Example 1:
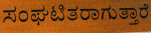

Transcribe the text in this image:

ಸಂಘಟಿತರಾಗುತ್ತಾರೆ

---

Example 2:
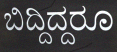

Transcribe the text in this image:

ಬಿದ್ದಿದ್ದರೂ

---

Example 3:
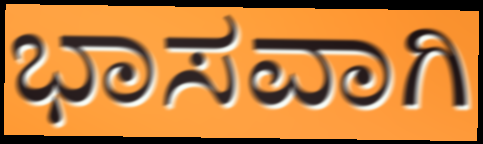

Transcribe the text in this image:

ಭಾಸವಾಗಿ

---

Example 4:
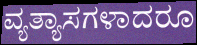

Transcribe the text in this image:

ವ್ಯತ್ಯಾಸಗಳಾದರೂ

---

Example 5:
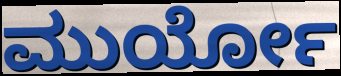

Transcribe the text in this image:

ಮುರ್ಯೋ